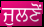
ਜੁਲਣੋਂ